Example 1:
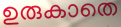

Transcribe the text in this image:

ഉരുകാതെ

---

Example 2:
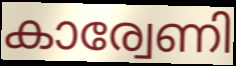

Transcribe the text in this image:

കാര്വേണി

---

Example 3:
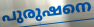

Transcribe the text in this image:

പുരുഷനെ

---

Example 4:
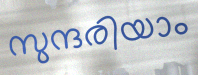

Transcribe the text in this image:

സുന്ദരിയാം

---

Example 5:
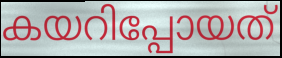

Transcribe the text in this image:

കയറിപ്പോയത്